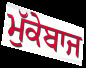
ਮੁੱਕੇਬਾਜ